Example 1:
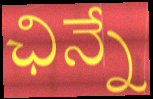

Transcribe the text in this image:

ఛిన్నే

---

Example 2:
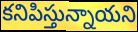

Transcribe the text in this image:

కనిపిస్తున్నాయని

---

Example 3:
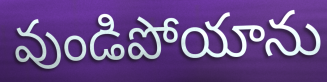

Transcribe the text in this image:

వుండిపోయాను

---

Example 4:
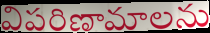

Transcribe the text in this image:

విపరిణామాలను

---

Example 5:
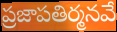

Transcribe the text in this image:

ప్రజాపతిర్మనవే